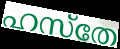
ഹസ്തേ